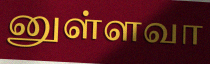
னுள்ளவா